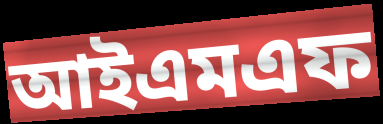
আইএমএফ